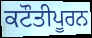
ਕਟੌਤੀਪੂਰਨ